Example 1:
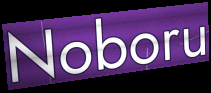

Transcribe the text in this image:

Noboru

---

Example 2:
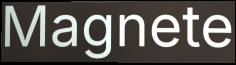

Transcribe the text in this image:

Magnete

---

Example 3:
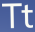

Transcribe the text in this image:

Tt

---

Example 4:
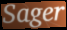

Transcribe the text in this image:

Sager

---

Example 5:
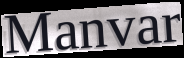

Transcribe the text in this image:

Manvar